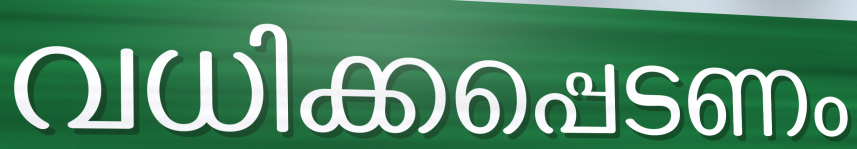
വധിക്കപ്പെടണം